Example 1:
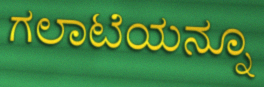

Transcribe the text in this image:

ಗಲಾಟೆಯನ್ನೂ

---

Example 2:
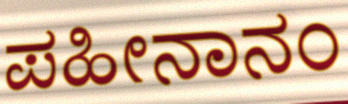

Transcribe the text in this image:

ಪಹೀನಾನಂ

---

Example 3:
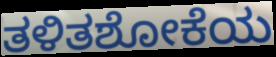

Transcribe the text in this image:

ತಳಿತಶೋಕೆಯ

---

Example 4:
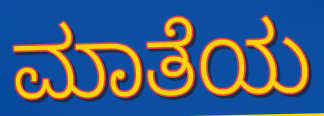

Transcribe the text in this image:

ಮಾತೆಯ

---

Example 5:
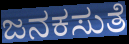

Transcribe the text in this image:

ಜನಕಸುತೆ